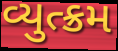
વ્યુત્ક્રમ